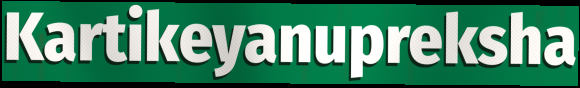
Kartikeyanupreksha